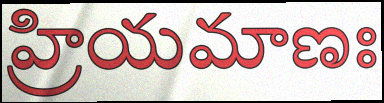
హ్రియమాణః